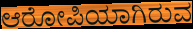
ಆರೋಪಿಯಾಗಿರುವ